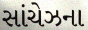
સાંચેઝના